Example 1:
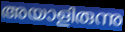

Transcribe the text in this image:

അയാളിരുന്നു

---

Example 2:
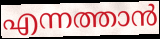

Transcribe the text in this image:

എന്നത്താൻ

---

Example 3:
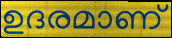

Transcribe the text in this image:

ഉദരമാണ്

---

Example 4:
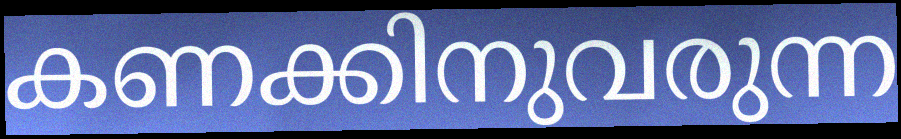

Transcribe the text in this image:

കണക്കിനുവരുന്ന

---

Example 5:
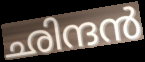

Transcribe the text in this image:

ഛിന്ദൻ